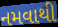
નમવાથી